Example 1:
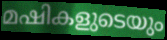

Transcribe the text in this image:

മഷികളുടെയും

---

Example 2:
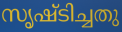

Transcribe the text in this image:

സൃഷ്ടിച്ചതു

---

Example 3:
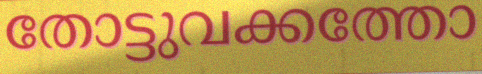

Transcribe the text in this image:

തോട്ടുവക്കത്തോ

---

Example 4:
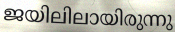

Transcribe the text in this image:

ജയിലിലായിരുന്നു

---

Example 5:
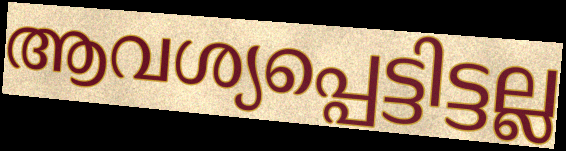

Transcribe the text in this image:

ആവശ്യപ്പെട്ടിട്ടല്ല